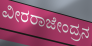
ವೀರರಾಜೇಂದ್ರನ